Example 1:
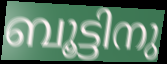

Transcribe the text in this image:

ബൂട്ടിനു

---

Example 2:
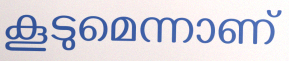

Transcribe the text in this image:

കൂടുമെന്നാണ്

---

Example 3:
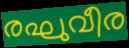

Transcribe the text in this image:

രഘുവീര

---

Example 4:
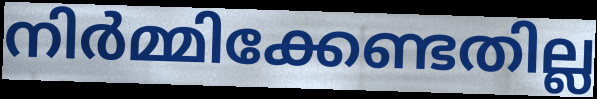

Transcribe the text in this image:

നിർമ്മിക്കേണ്ടതില്ല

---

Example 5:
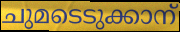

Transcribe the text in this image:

ചുമടെടുക്കാന്